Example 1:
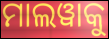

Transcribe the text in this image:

ମାଲୱାକୁ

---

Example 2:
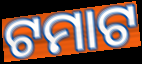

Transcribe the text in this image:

ଟମାଟ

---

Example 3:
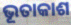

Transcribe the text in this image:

ଭୂତାକାଶ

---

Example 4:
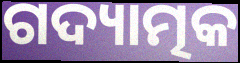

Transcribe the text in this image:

ଗଦ୍ୟାତ୍ମକ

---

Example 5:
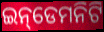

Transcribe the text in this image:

ଇନ୍‌ଡେମନିଟି